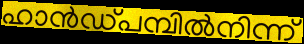
ഹാൻഡ്പമ്പിൽനിന്ന്